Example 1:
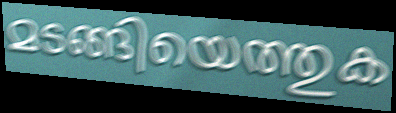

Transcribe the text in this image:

മടങ്ങിയെത്തുക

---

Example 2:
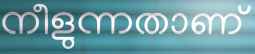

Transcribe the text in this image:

നീളുന്നതാണ്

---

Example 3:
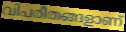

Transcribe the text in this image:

വിപരീതങ്ങളാണ്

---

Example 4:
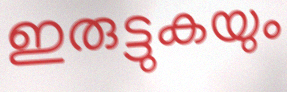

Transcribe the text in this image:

ഇരുട്ടുകയും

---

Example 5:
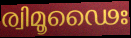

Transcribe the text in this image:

ര്വിമൂഢൈഃ